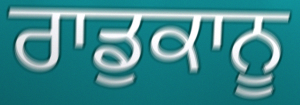
ਰਾਡੁਕਾਨੂ